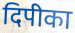
दिपीका